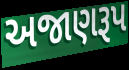
અજાણરૂપ